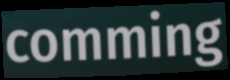
comming